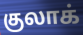
குலாக்